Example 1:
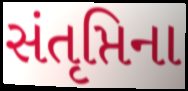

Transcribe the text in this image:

સંતૃપ્તિના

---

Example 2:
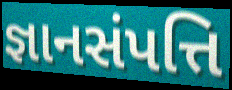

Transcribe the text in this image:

જ્ઞાનસંપત્તિ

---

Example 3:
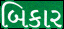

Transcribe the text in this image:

બિકાર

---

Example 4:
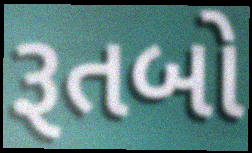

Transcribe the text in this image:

રૂતબો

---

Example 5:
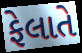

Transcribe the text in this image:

ફેલાતે